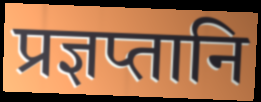
प्रज्ञप्तानि